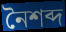
নৈশব্দ